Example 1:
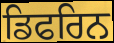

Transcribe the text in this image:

ਡਿਫਰਿਨ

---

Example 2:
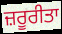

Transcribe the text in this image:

ਜ਼ਰੂਰੀਤਾ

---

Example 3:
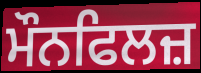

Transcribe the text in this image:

ਮੌਨਫਿਲਜ਼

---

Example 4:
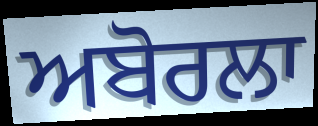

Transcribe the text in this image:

ਅਬੋਰਲਾ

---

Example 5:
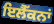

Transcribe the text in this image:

ਇਲੈੱਕਨਾਂ